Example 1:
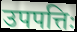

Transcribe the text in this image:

उपपत्तिः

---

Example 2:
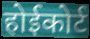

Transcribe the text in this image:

होईकोर्ट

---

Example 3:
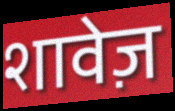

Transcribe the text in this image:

शावेज़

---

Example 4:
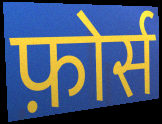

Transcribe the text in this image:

फ़ोर्स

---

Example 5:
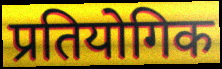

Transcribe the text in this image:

प्रतियोगिक